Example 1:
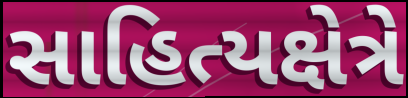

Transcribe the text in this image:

સાહિત્યક્ષેત્રે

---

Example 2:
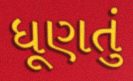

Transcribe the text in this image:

ધૂણતું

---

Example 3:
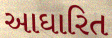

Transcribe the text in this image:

આઘારિત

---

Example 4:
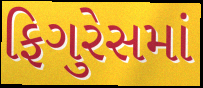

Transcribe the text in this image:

ફિગુરેસમાં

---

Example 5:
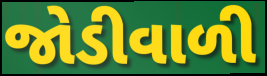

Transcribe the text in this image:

જોડીવાળી